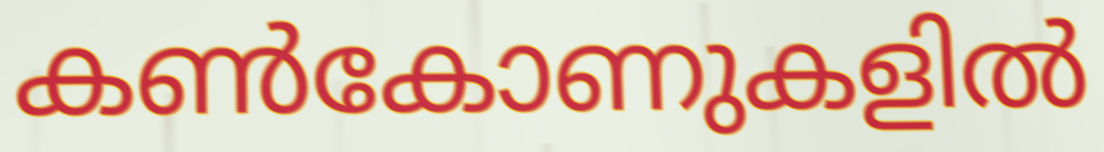
കൺകോണുകളിൽ